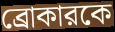
ব্রোকারকে